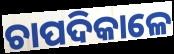
ଚାପଦିକାଳେ